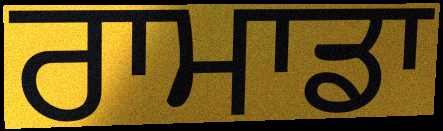
ਰਾਮਾਡਾ